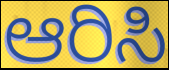
ಆರಿಸಿ